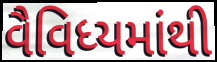
વૈવિધ્યમાંથી